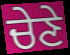
ਚੇਣੇ